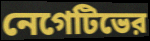
নেগেটিভের